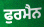
ਫੁਰਮੈਨ